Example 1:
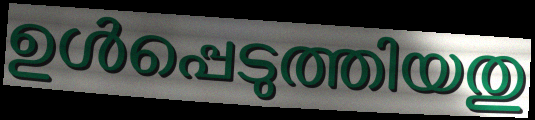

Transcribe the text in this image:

ഉൾപ്പെടുത്തിയതു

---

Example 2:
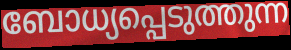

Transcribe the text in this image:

ബോധ്യപ്പെടുത്തുന്ന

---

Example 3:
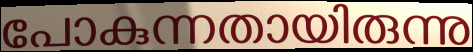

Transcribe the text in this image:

പോകുന്നതായിരുന്നു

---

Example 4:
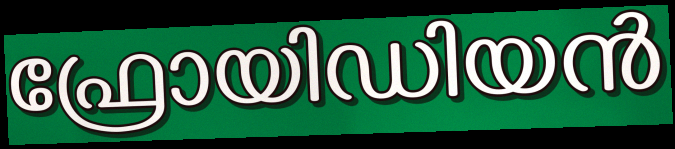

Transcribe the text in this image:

ഫ്രോയിഡിയൻ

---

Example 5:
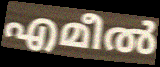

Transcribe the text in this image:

എമീൽ